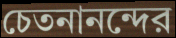
চেতনানন্দের